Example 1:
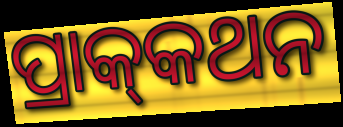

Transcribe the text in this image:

ପ୍ରାକ୍‍କଥନ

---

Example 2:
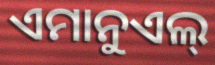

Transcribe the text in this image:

ଏମାନୁଏଲ୍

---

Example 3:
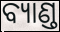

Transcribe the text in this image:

ବ୍ୟାଣ୍ଡ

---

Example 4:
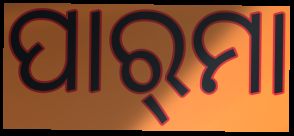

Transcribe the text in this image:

ପାର୍‌ମା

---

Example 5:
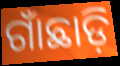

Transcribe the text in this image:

ଗାଁଛାଡ଼ି